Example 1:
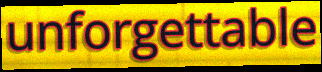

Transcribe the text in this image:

unforgettable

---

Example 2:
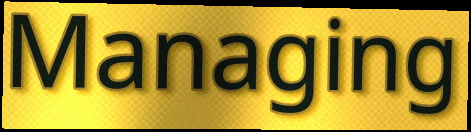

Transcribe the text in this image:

Managing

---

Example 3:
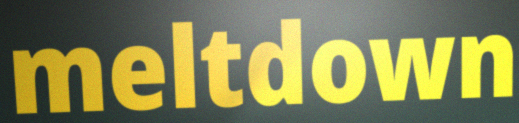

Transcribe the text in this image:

meltdown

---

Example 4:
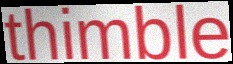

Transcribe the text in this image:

thimble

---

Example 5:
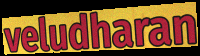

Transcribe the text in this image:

veludharan